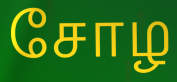
சோழ